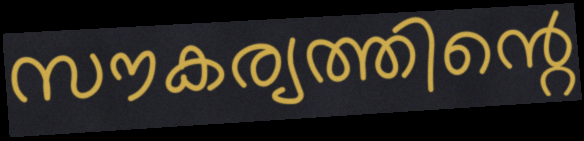
സൗകര്യത്തിന്റെ